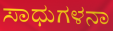
ಸಾಧುಗಳನಾ